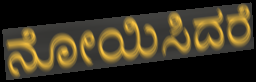
ನೋಯಿಸಿದರೆ